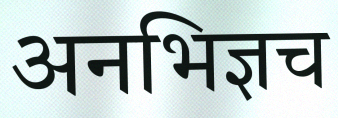
अनभिज्ञच